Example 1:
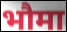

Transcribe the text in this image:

भौमा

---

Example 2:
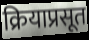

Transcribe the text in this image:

क्रियाप्रसूत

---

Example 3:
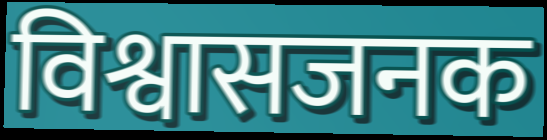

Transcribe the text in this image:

विश्वासजनक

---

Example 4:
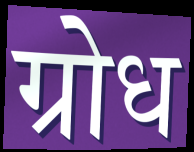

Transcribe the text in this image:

ग्रोध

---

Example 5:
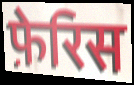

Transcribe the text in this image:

फ़ेरिस